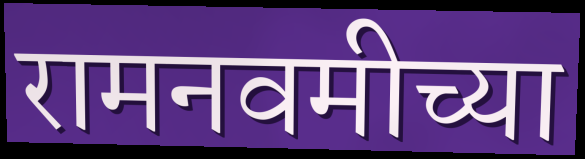
रामनवमीच्या